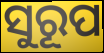
ସୁରୂପ